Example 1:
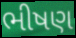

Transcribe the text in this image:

ભીષણ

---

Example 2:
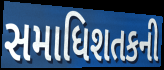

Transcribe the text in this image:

સમાધિશતકની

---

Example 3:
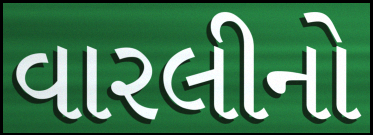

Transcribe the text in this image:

વારલીનો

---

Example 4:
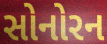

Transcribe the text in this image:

સોનોરન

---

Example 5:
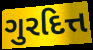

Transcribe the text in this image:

ગુરદિત્ત